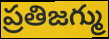
ప్రతిజగ్ము